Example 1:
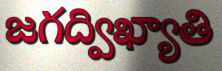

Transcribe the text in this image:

జగద్విఖ్యాతి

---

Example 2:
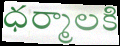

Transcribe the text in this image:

ధర్మాలకి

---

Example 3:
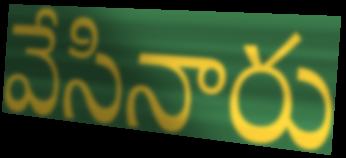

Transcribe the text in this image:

వేసినారు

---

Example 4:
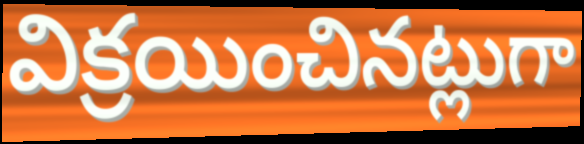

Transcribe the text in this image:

విక్రయించినట్లుగా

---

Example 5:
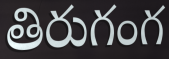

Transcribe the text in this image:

తిరుగంగ